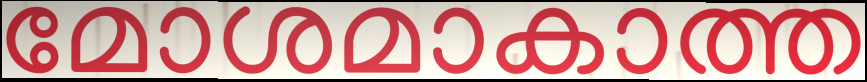
മോശമാകാത്ത